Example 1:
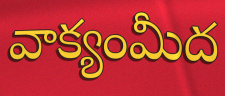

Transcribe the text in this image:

వాక్యంమీద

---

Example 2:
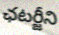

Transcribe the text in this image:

ఛటర్జీని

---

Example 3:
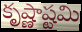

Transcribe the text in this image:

కృష్ణాష్టమి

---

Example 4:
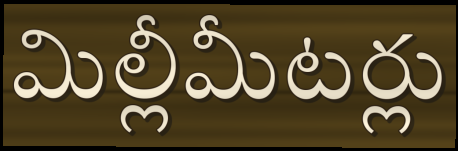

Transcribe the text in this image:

మిల్లీమీటర్లు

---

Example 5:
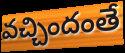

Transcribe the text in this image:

వచ్చిందంతే